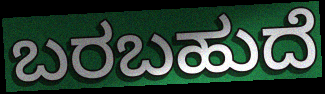
ಬರಬಹುದೆ